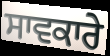
ਸਾਵਕਾਰੇ